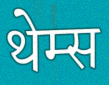
थेम्स